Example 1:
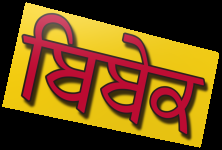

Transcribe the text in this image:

ਬਿਬੇਕ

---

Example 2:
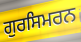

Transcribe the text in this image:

ਗੁਰਸਿਮਰਨ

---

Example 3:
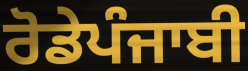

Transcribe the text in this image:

ਰੋਡੇਪੰਜਾਬੀ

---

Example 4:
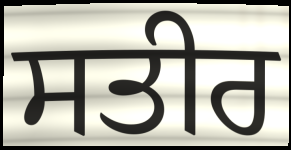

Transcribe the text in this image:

ਸਤੀਰ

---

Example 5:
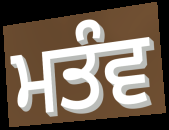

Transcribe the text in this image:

ਮਤੰਵ